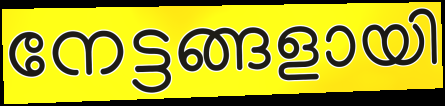
നേട്ടങ്ങളായി